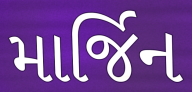
માર્જિન